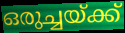
ഒരുച്ചയ്ക്ക്